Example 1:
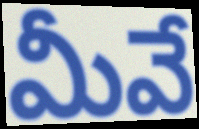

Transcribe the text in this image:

మీవే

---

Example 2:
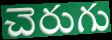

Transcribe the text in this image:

చెరుగు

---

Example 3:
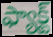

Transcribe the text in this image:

ఫ్యాక్ట్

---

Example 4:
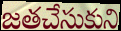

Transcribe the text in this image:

జతచేసుకుని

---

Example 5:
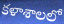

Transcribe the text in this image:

కళాశాలలో